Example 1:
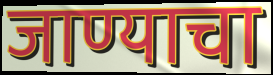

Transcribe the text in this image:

जाण्याचा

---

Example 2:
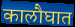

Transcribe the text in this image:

कालौघात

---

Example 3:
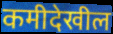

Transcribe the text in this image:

कमीदेखील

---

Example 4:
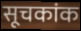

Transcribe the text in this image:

सूचकांक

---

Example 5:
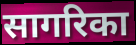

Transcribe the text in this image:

सागरिका